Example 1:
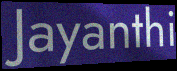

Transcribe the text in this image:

Jayanthi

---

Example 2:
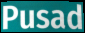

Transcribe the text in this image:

Pusad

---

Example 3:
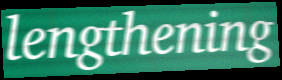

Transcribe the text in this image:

lengthening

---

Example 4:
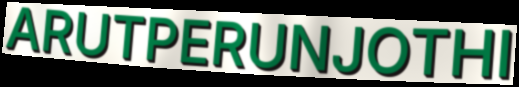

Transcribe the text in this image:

ARUTPERUNJOTHI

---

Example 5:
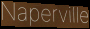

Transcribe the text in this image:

Naperville